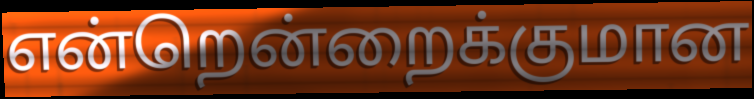
என்றென்றைக்குமான